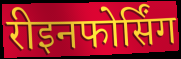
रीइनफोर्सिंग